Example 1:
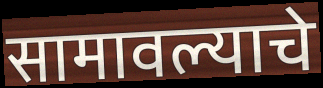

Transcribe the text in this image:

सामावल्याचे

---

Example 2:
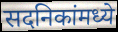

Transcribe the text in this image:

सदनिकांमध्ये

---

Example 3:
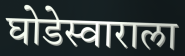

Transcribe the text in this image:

घोडेस्वाराला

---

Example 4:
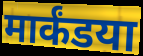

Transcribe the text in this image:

मार्कंडया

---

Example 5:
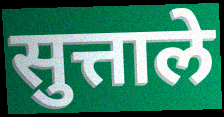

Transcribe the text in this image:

सुत्ताले